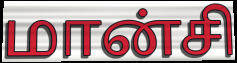
மான்சி